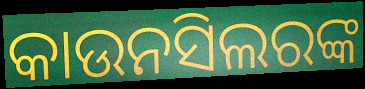
କାଉନସିଲରଙ୍କ